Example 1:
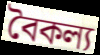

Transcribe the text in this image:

বৈকল্য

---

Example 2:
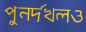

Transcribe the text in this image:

পুনর্দখলও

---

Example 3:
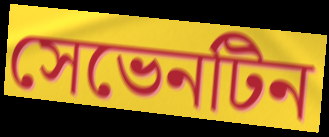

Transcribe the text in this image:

সেভেনটিন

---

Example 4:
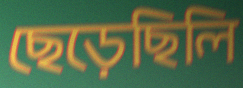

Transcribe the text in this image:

ছেড়েছিলি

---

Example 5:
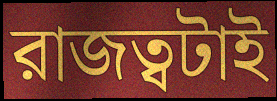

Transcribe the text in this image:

রাজত্বটাই